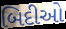
બિદીઓ